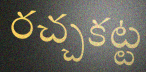
రచ్చకట్ట